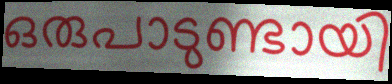
ഒരുപാടുണ്ടായി